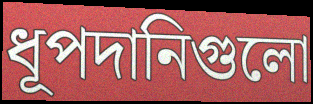
ধূপদানিগুলো